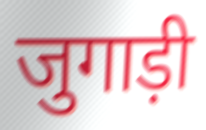
जुगाड़ी